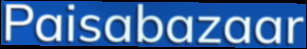
Paisabazaar